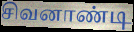
சிவனாண்டி